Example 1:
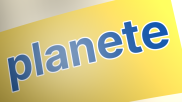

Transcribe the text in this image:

planete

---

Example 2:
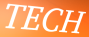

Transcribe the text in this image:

TECH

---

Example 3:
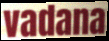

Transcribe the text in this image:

vadana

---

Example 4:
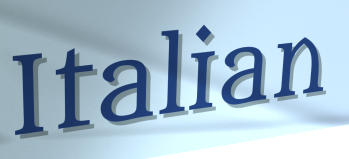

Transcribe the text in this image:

Italian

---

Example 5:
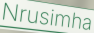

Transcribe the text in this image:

Nrusimha